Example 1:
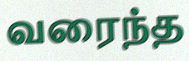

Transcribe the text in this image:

வரைந்த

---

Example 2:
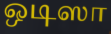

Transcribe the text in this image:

ஒடிஸா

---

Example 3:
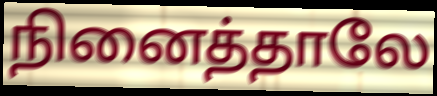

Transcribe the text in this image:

நினைத்தாலே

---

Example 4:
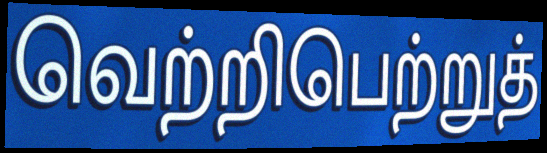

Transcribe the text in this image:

வெற்றிபெற்றுத்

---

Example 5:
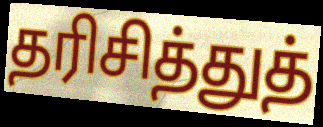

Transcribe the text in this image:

தரிசித்துத்